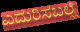
ಎದುರಿಸಬಲ್ಲೆ